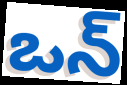
ఒన్